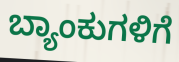
ಬ್ಯಾಂಕುಗಳಿಗೆ